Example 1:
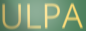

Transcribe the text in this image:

ULPA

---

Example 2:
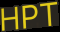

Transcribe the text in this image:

HPT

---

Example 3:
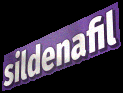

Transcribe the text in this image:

sildenafil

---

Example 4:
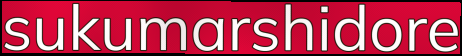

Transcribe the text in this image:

sukumarshidore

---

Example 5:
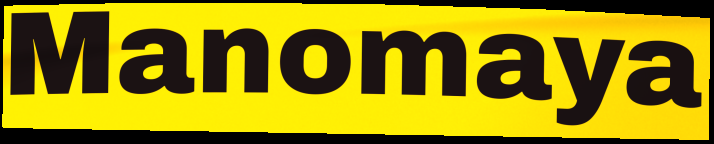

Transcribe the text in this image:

Manomaya